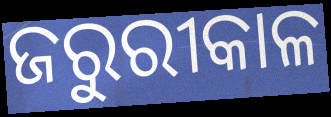
ଜରୁରୀକାଳ